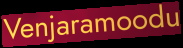
Venjaramoodu